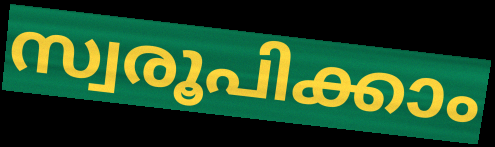
സ്വരൂപിക്കാം